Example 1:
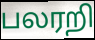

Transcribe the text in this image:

பலரறி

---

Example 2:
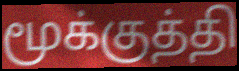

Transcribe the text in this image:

மூக்குத்தி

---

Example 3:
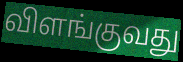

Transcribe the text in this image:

விளங்குவது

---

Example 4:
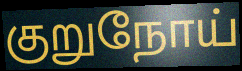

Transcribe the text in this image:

குறுநோய்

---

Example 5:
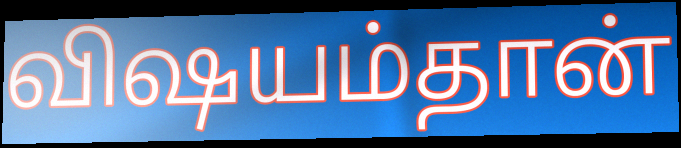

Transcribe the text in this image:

விஷயம்தான்